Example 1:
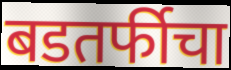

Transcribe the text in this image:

बडतर्फीचा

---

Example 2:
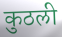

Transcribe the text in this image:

कुठली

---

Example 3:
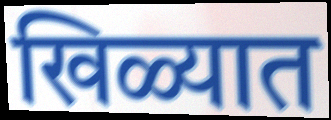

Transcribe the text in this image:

खिळ्यात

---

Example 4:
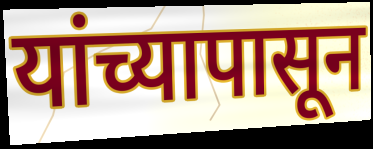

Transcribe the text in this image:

यांच्यापासून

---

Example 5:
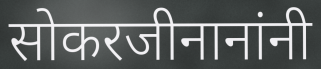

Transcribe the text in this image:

सोकरजीनानांनी